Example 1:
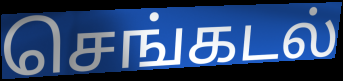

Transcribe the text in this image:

செங்கடல்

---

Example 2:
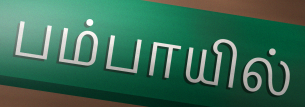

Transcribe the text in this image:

பம்பாயில்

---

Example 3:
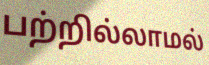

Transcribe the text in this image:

பற்றில்லாமல்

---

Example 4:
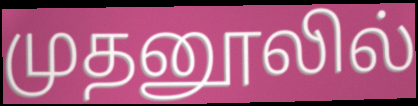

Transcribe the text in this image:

முதனூலில்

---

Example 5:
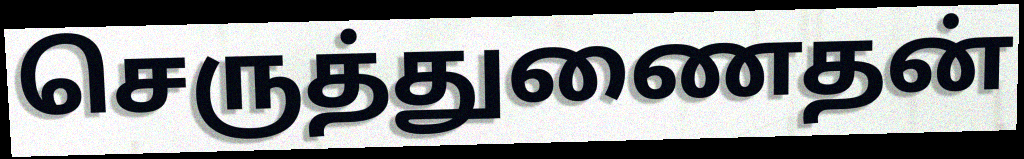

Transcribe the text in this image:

செருத்துணைதன்